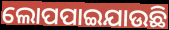
ଲୋପପାଇଯାଉଛି